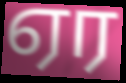
ஏர